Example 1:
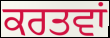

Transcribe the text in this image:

ਕਰਤਵਾਂ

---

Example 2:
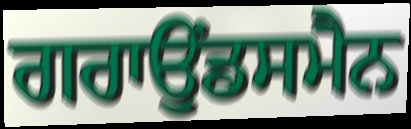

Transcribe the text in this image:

ਗਰਾਉਂਡਸਮੈਨ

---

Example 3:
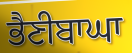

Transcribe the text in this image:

ਭੈਣੀਬਾਘਾ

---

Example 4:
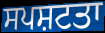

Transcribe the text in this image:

ਸਪਸ਼ਟਤਾ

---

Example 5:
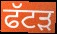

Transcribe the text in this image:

ਫੱਟੜ